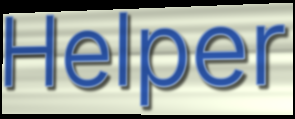
Helper